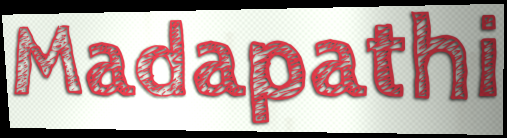
Madapathi